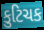
કુટિચક